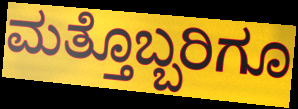
ಮತ್ತೊಬ್ಬರಿಗೂ